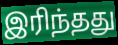
இரிந்தது